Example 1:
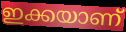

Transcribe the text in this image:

ഇക്കയാണ്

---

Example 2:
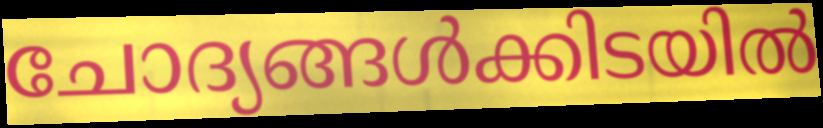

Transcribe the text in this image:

ചോദ്യങ്ങൾക്കിടയിൽ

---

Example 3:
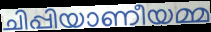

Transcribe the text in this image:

ചിപ്പിയാണീയമ്മ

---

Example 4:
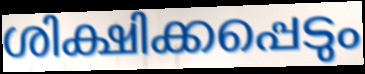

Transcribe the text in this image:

ശിക്ഷിക്കപ്പെടും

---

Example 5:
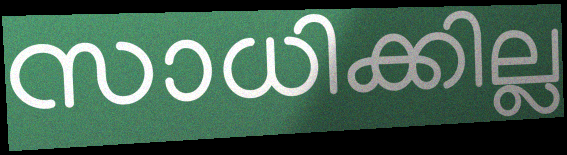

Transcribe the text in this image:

സാധിക്കില്ല